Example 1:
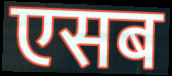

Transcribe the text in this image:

एसब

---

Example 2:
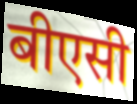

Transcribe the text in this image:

बीएसी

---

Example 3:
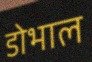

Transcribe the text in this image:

डोभाल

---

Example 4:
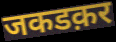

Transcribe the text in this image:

जकडक़र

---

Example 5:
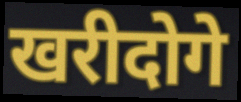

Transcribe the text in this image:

खरीदोगे